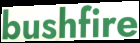
bushfire